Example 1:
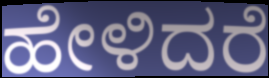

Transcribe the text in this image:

ಹೇಳಿದರೆ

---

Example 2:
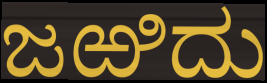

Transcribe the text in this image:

ಜಱಿದು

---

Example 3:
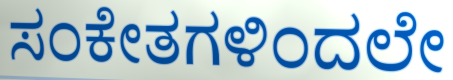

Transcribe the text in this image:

ಸಂಕೇತಗಳಿಂದಲೇ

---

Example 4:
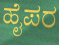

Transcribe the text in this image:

ಹೈಪರ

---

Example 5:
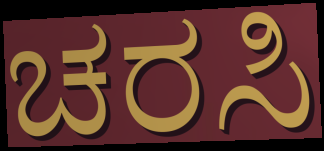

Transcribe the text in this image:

ಚರಸಿ